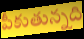
పీకుతున్నది